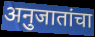
अनुजातांचा